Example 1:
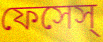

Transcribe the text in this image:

ফেসেস্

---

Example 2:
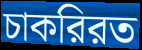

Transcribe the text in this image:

চাকরিরত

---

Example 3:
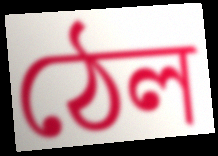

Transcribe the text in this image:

ঠেল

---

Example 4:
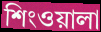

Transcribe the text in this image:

শিংওয়ালা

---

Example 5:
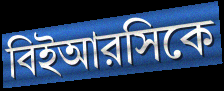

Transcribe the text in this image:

বিইআরসিকে